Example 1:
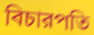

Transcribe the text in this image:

বিচারপতি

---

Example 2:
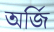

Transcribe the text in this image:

অর্জি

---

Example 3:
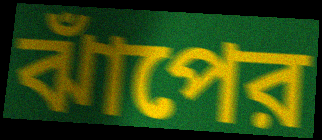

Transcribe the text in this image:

ঝাঁপের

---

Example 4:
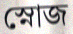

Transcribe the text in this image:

স্নোজ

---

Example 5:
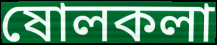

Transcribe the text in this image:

ষোলকলা